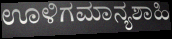
ಊಳಿಗಮಾನ್ಯಶಾಹಿ